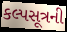
કલ્પસૂત્રની